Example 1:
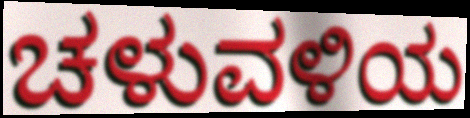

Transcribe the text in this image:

ಚಳುವಳಿಯ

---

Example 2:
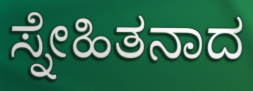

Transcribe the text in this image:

ಸ್ನೇಹಿತನಾದ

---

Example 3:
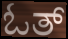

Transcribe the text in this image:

ಓತ್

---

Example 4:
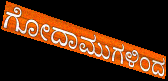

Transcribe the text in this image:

ಗೋದಾಮುಗಳಿಂದ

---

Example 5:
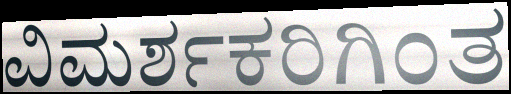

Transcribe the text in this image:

ವಿಮರ್ಶಕರಿಗಿಂತ